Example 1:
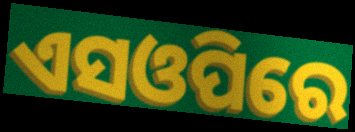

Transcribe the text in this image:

ଏସଓପିରେ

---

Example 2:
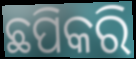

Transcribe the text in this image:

ଛପିକରି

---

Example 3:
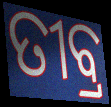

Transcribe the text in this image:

ତୀବ୍ର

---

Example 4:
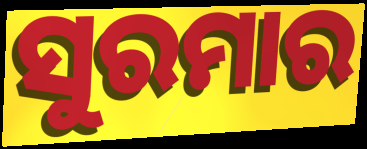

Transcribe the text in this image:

ସୁରମାର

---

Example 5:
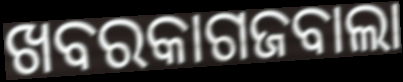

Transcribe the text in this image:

ଖବରକାଗଜବାଲା